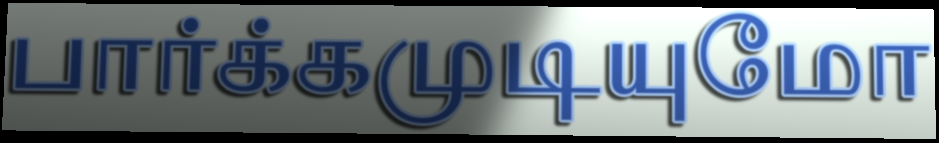
பார்க்கமுடியுமோ